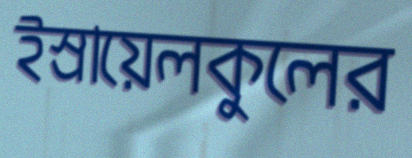
ইস্রায়েলকুলের